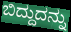
ಬಿದ್ದುದನ್ನು